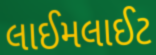
લાઈમલાઈટ